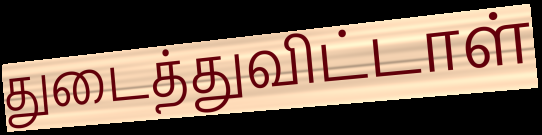
துடைத்துவிட்டாள்